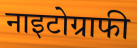
नाइटोग्राफी